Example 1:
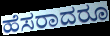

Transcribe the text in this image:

ಹೆಸರಾದರೂ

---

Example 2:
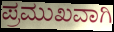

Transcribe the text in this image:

ಪ್ರಮುಖವಾಗಿ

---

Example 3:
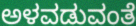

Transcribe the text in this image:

ಅಳವಡುವಂತೆ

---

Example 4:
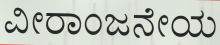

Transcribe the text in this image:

ವೀರಾಂಜನೇಯ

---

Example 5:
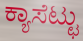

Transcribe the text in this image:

ಕ್ಯಾಸೆಟ್ಟು